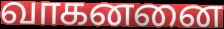
வாகனனை